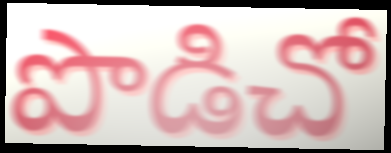
పొడిచో